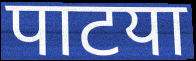
पाटया